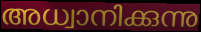
അധ്വാനിക്കുന്നു